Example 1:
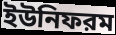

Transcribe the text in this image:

ইউনিফরম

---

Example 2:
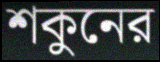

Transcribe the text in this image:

শকুনের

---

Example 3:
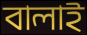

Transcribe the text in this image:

বালাই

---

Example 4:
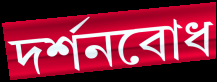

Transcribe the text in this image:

দর্শনবোধ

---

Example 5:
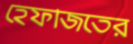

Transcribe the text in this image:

হেফাজতের